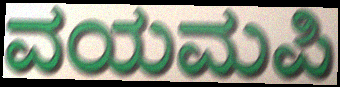
ವಯಮಪಿ